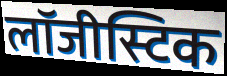
लॉजीस्टिक